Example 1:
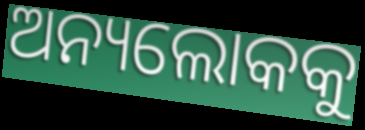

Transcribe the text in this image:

ଅନ୍ୟଲୋକକୁ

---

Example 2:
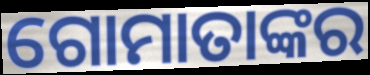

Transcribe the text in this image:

ଗୋମାତାଙ୍କର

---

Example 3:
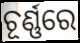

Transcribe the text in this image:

ଚୂର୍ଣ୍ଣରେ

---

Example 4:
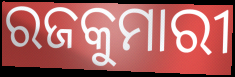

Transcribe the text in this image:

ରଜକୁମାରୀ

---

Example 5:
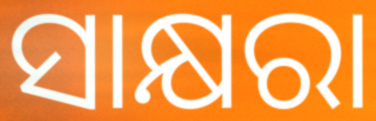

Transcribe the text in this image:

ସାକ୍ଷରା